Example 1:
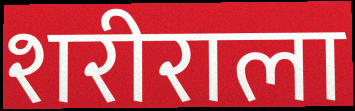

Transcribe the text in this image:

शरीराला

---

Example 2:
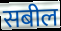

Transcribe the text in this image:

सबील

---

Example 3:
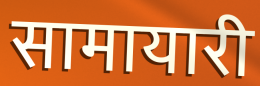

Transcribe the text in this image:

सामायारी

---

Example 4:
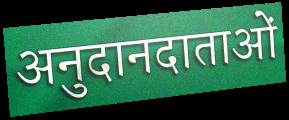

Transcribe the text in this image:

अनुदानदाताओं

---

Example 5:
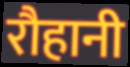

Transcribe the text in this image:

रौहानी